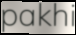
pakhi